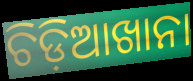
ଚିଡ଼ିଆଖାନା